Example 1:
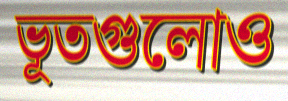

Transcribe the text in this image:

ভূতগুলোও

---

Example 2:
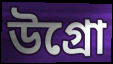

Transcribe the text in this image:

উগ্রো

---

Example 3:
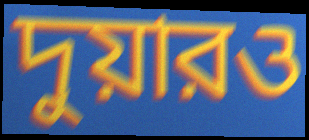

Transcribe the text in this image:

দুয়ারও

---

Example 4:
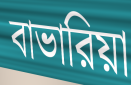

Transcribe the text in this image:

বাভারিয়া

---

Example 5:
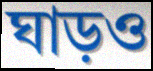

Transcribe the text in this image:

ঘাড়ও